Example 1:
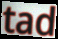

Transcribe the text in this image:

tad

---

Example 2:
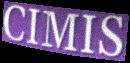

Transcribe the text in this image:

CIMIS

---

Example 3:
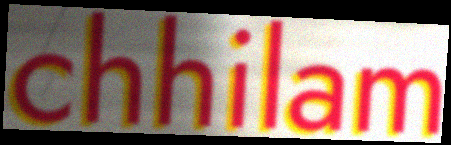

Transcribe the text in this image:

chhilam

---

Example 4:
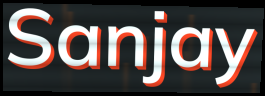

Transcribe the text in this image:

Sanjay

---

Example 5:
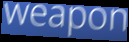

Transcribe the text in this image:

weapon